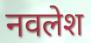
नवलेश